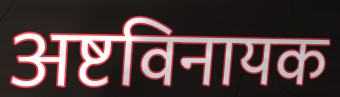
अष्टविनायक